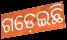
ଗଡ଼େଇଛି